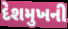
દેશમુખની